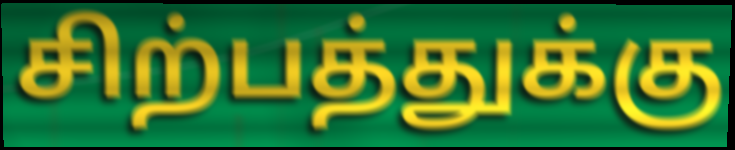
சிற்பத்துக்கு